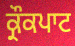
ਕ੍ਰੌਕਪਾਟ